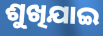
ଶୁଖିଯାଇ